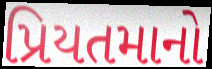
પ્રિયતમાનો